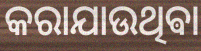
କରାଯାଉଥିଵା